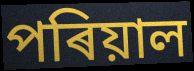
পৰিয়াল